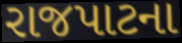
રાજપાટના